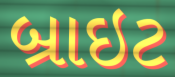
બ્રાઇટ